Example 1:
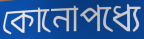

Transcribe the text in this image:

কোনোপধ্যে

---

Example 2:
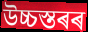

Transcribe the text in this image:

উচ্চস্তৰৰ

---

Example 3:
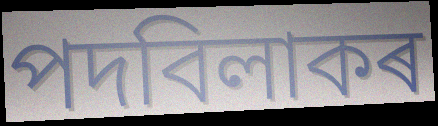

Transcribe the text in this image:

পদবিলাকৰ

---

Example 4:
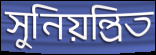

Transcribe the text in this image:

সুনিয়ন্ত্ৰিত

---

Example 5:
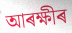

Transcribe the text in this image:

আৰক্ষীৰ